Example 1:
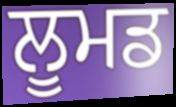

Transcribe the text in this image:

ਲੂਮਡ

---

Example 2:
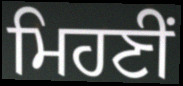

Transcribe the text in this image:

ਮਿਹਣੀਂ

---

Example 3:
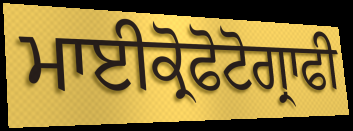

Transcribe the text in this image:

ਮਾਈਕ੍ਰੋਫੋਟੋਗ੍ਰਾਫੀ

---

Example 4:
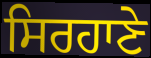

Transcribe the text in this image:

ਸਿਰਹਾਣੇ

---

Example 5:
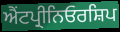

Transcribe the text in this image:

ਐਂਟਪ੍ਰੀਨਿਓਰਸ਼ਿਪ